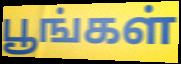
பூங்கள்